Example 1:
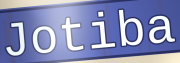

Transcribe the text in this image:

Jotiba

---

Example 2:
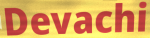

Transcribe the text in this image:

Devachi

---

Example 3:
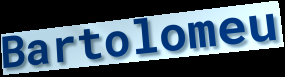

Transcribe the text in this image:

Bartolomeu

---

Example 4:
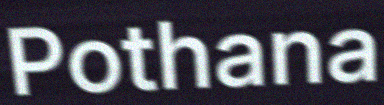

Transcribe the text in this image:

Pothana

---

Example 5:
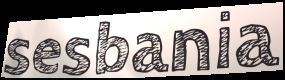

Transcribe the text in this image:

sesbania